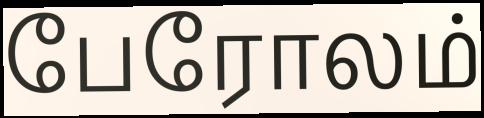
பேரோலம்